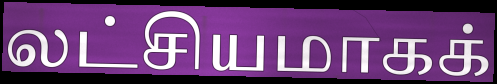
லட்சியமாகக்